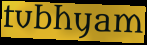
tubhyam